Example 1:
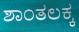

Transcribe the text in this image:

ಶಾಂತಲಕ್ಕ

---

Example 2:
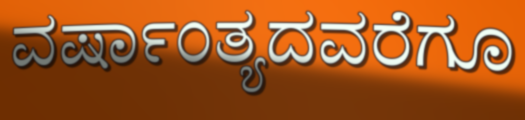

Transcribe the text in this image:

ವರ್ಷಾಂತ್ಯದವರೆಗೂ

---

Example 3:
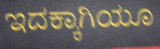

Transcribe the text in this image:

ಇದಕ್ಕಾಗಿಯೂ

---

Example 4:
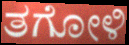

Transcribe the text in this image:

ತಗೋಳಿ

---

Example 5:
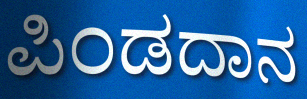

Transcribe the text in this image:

ಪಿಂಡದಾನ